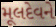
મૂલદેવને